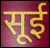
सूई